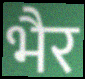
भैर